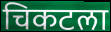
चिकटला